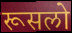
रूसलो